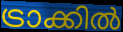
ട്രാക്കിൽ